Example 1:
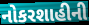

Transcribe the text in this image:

નોકરશાહીની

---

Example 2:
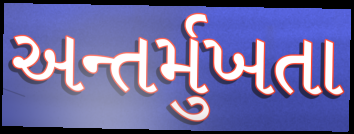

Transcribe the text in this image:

અન્તર્મુખતા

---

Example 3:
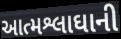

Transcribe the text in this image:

આત્મશ્લાઘાની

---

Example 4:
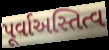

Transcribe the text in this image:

પૂર્વાઅસ્તિત્વ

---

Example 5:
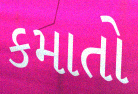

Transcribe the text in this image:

કમાતો